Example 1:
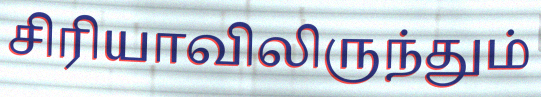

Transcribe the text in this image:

சிரியாவிலிருந்தும்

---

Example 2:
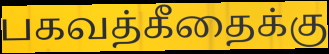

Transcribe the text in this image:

பகவத்கீதைக்கு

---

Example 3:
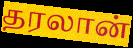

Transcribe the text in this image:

தரலான்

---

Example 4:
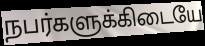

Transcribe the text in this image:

நபர்களுக்கிடையே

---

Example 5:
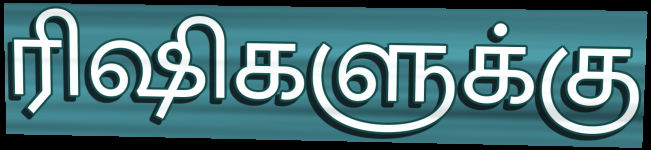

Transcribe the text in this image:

ரிஷிகளுக்கு